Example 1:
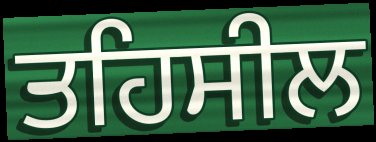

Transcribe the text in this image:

ਤਹਿਸੀਲ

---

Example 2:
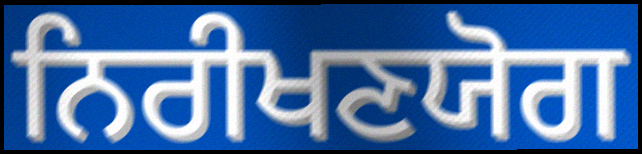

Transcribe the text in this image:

ਨਿਰੀਖਣਯੋਗ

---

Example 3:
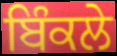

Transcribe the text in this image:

ਬਿੰਕਲੇ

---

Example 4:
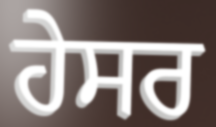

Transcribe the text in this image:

ਹੇਸਰ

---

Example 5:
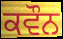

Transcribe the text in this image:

ਕਵੌਨ